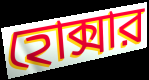
হোক্সার